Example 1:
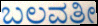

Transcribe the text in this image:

ಬಲವತೀ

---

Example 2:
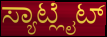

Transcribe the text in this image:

ಸ್ಯಾಟ್ಲೈಟ್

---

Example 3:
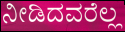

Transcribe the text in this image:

ನೀಡಿದವರೆಲ್ಲ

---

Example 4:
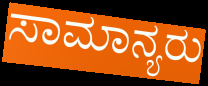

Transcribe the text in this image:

ಸಾಮಾನ್ಯರು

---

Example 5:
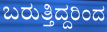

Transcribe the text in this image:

ಬರುತ್ತಿದ್ದರಿಂದ